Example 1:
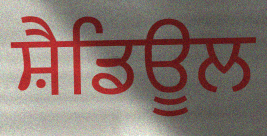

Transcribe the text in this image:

ਸ਼ੈਡਿਊਲ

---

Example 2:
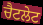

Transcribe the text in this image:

ਚੈਟਲੇਟ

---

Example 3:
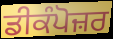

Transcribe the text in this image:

ਡੀਕੰਪੋਜ਼ਰ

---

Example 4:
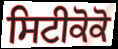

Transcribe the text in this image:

ਸਿਟੀਕੋਕੋ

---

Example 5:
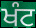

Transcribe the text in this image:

ਖੰਟ